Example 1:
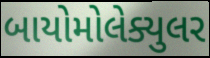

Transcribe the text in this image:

બાયોમોલેક્યુલર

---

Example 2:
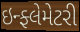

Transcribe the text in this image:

ઇન્ફ્લેમેટરી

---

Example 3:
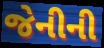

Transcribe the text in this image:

જેનીની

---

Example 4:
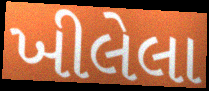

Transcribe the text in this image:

ખીલેલા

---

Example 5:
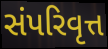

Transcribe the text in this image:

સંપરિવૃત્ત